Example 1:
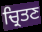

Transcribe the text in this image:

ਚ੍ਰਿਤਣ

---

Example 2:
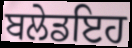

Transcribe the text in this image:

ਬਲੇਡਇਹ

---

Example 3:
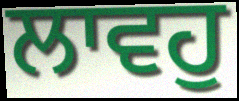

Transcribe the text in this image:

ਲਾਵਹੁ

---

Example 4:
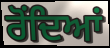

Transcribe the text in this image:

ਰੋਂਦਿਆਂ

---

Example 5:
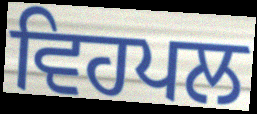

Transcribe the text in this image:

ਵਿਹਪਲ